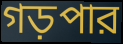
গড়পার